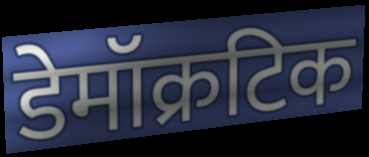
डेमॉक्रटिक